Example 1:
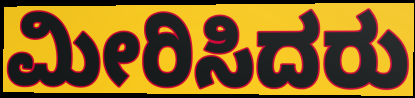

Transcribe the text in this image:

ಮೀರಿಸಿದರು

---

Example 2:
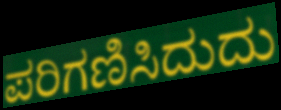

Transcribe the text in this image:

ಪರಿಗಣಿಸಿದುದು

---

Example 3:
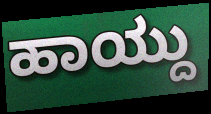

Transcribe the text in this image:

ಹಾಯ್ದು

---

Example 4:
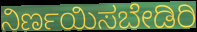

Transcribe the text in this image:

ನಿರ್ಣಯಿಸಬೇಡಿರಿ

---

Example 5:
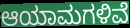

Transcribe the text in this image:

ಆಯಾಮಗಳಿವೆ